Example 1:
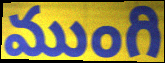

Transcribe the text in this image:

ముంగి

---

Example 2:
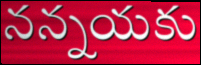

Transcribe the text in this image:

నన్నయకు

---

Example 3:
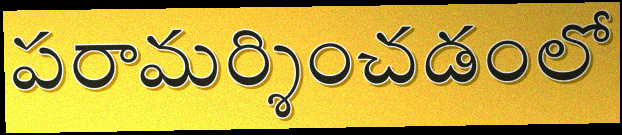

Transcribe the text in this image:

పరామర్శించడంలో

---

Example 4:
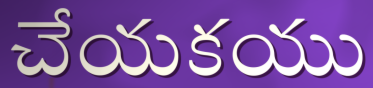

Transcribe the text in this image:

చేయకయు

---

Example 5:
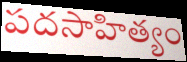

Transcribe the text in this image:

పదసాహిత్యం